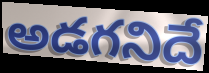
అడగనిదే